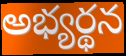
అభ్యర్థన